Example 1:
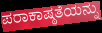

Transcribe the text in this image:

ಪರಾಕಾಷ್ಠತೆಯನ್ನು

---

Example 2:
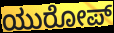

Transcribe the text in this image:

ಯುರೋಪ್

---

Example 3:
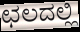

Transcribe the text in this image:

ಛಲದಲ್ಲಿ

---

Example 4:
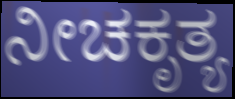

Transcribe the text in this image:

ನೀಚಕೃತ್ಯ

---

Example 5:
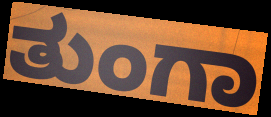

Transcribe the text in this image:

ತುಂಗಾ